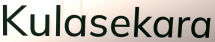
Kulasekara